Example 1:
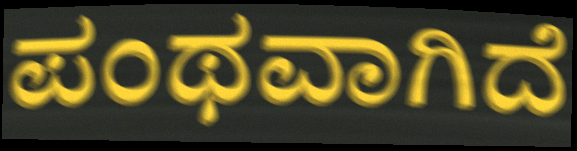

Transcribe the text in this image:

ಪಂಥವಾಗಿದೆ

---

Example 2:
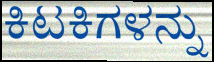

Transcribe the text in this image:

ಕಿಟಕಿಗಳನ್ನು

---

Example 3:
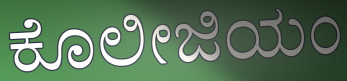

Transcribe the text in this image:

ಕೊಲೀಜಿಯಂ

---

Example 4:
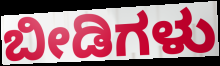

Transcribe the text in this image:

ಬೀಡಿಗಳು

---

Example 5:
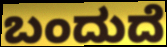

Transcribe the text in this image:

ಬಂದುದೆ